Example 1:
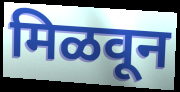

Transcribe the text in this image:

मिळवून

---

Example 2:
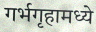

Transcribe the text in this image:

गर्भगृहामध्ये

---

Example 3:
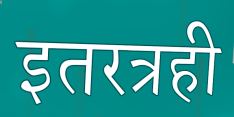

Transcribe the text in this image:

इतरत्रही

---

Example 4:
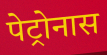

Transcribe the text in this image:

पेट्रोनास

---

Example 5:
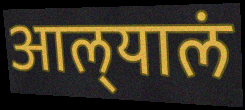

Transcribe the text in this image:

आल्यालं